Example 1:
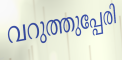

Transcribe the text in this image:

വറുത്തുപ്പേരി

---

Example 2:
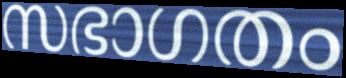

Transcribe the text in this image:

സഭാഗതം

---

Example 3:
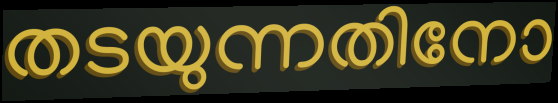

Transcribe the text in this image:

തടയുന്നതിനോ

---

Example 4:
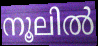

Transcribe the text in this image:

നൂലിൽ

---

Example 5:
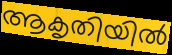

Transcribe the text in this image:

ആകൃതിയിൽ